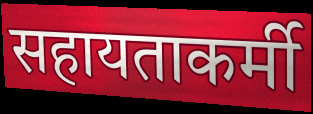
सहायताकर्मी